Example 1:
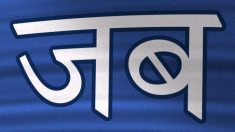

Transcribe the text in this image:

जब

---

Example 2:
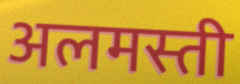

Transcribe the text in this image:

अलमस्ती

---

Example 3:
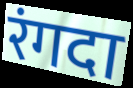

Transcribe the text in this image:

रंगदा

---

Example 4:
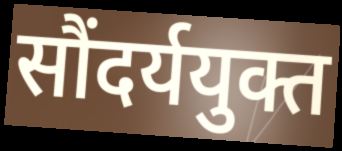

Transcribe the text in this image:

सौंदर्ययुक्त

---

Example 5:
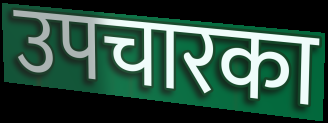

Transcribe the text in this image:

उपचारका